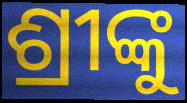
ଶ୍ରୀଙ୍କୁ